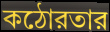
কঠোরতার